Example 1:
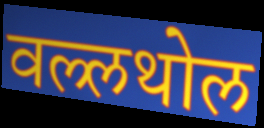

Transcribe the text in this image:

वल्लथोल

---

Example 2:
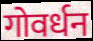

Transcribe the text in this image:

गोवर्धन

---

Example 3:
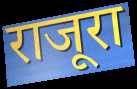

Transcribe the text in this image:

राजूरा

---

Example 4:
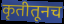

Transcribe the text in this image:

कृतीतूनच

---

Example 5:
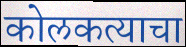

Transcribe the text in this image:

कोलकत्याचा